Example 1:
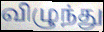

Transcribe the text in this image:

விழுந்து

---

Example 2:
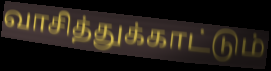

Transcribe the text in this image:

வாசித்துக்காட்டும்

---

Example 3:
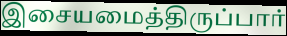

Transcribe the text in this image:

இசையமைத்திருப்பார்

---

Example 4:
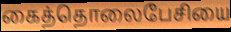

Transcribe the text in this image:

கைத்தொலைபேசியை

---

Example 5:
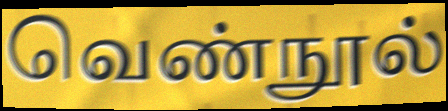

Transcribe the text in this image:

வெண்நூல்